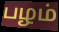
பழம்